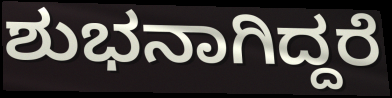
ಶುಭನಾಗಿದ್ದರೆ